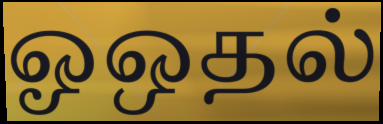
ஓஒதல்